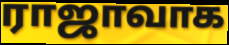
ராஜாவாக